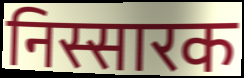
निस्सारक